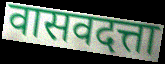
वासवदत्ता